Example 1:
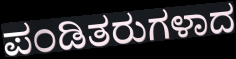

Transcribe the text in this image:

ಪಂಡಿತರುಗಳಾದ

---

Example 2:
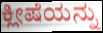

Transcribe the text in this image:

ಕ್ಲೀಷೆಯನ್ನು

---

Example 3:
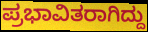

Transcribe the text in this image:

ಪ್ರಭಾವಿತರಾಗಿದ್ದು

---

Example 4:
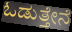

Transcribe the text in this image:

ಓಡುತ್ತೇನೆ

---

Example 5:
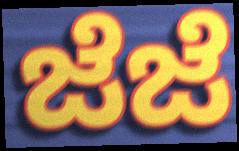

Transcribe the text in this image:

ಜೆಜೆ